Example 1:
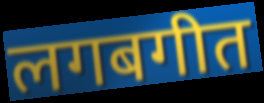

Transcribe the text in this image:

लगबगीत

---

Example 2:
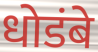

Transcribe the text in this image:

धोडंबे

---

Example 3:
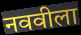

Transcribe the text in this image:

नववीला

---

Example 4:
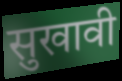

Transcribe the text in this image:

सुखावी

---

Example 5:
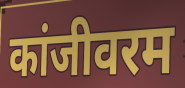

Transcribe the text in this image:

कांजीवरम